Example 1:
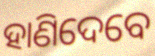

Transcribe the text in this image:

ହାଣିଦେବେ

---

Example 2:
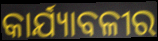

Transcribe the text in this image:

କାର୍ଯ୍ୟାବଳୀର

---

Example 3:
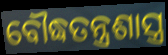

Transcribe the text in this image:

ବୌଦ୍ଧତନ୍ତ୍ରଶାସ୍ତ୍ର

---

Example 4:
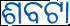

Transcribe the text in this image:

ଶବଟା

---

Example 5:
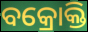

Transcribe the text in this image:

ବକ୍ରୋକ୍ତି